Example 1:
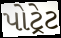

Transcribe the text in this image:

પોટ્રેટ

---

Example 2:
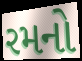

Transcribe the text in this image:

રમનો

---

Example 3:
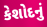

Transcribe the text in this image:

કેશોદનું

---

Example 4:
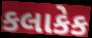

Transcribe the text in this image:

કલાકેક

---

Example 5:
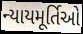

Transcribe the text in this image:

ન્યાયમૂર્તિઓ